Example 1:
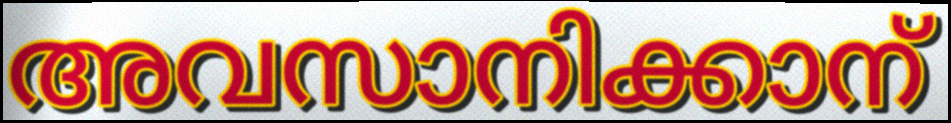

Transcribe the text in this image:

അവസാനിക്കാന്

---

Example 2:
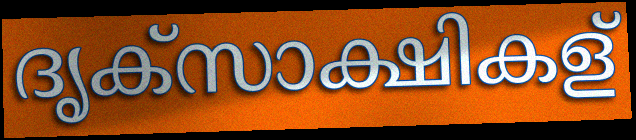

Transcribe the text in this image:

ദൃക്സാക്ഷികള്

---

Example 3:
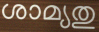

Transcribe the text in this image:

ശാമ്യതു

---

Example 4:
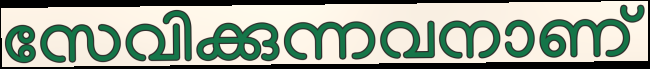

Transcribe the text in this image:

സേവിക്കുന്നവനാണ്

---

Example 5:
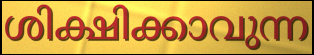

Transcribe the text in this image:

ശിക്ഷിക്കാവുന്ന